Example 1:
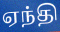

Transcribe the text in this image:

ஏந்தி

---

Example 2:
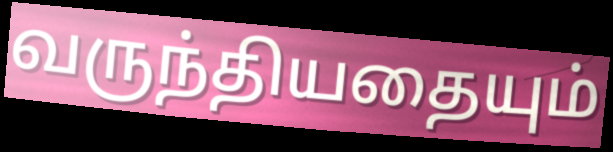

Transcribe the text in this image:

வருந்தியதையும்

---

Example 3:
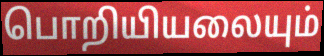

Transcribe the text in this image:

பொறியியலையும்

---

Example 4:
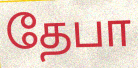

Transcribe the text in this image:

தேபா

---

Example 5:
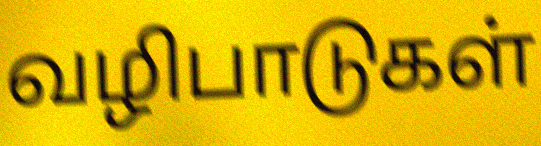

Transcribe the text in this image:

வழிபாடுகள்